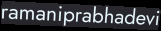
ramaniprabhadevi